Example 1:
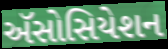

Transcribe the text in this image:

ઍસોસિયેશન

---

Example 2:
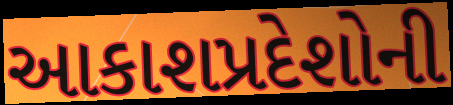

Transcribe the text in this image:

આકાશપ્રદેશોની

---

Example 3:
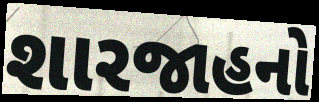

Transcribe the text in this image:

શારજાહનો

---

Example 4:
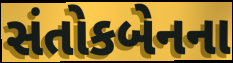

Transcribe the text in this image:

સંતોકબેનના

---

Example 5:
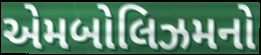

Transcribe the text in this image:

એમબોલિઝમનો